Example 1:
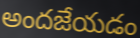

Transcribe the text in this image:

అందజేయడం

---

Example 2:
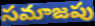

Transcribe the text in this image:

సమాజపు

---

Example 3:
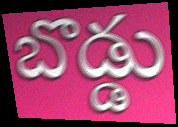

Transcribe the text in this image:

బొడ్డు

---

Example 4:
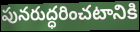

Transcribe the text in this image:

పునరుద్ధరించటానికి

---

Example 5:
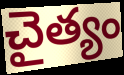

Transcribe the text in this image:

చైత్యం